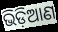
ଭିଡ଼ିଆଣ